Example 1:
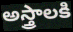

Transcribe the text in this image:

అస్త్రాలకి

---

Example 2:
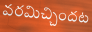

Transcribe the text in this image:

వరమిచ్చిందట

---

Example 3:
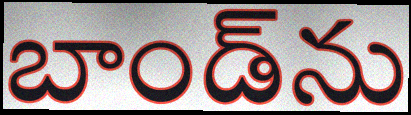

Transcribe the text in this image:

బాండ్‌ను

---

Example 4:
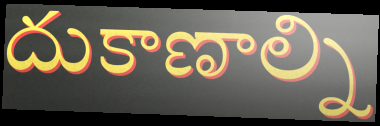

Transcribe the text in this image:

దుకాణాల్ని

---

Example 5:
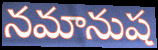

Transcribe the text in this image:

నమానుష